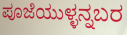
ಪೂಜೆಯುಳ್ಳನ್ನಬರ